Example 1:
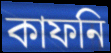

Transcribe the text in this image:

কাফনি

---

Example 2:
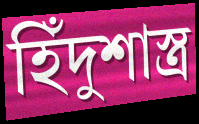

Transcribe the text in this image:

হিঁদুশাস্ত্র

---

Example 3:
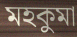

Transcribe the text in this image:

মহকুমা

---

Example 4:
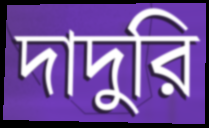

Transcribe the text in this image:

দাদুরি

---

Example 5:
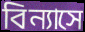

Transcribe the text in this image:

বিন্যাসে